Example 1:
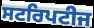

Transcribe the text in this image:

ਸਟਰਿਪਟੀਜ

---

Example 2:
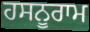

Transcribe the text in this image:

ਹਸਨੂਰਾਮ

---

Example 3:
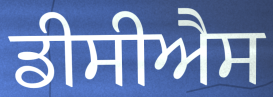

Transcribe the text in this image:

ਡੀਸੀਐਸ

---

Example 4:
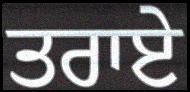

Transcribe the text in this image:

ਤਰਾਏ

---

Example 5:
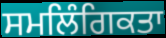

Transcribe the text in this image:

ਸਮਲਿੰਗਿਕਤਾ